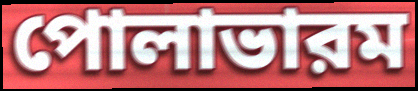
পোলাভারম